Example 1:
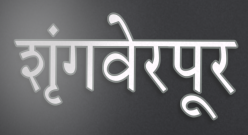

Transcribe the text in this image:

शृंगवेरपूर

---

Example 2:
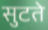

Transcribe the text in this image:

सुटते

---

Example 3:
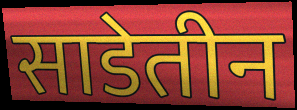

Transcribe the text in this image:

साडेतीन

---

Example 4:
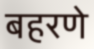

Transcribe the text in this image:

बहरणे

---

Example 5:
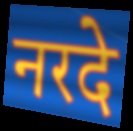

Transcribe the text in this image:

नरदे